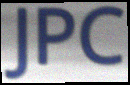
JPC